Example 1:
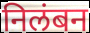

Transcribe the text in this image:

निलंबन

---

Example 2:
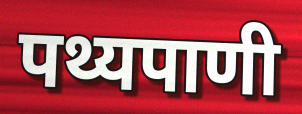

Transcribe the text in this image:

पथ्यपाणी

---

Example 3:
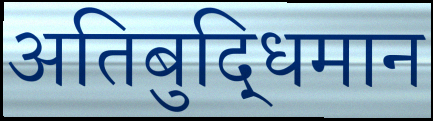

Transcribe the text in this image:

अतिबुद्धिमान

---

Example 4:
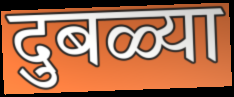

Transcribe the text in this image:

दुबळ्या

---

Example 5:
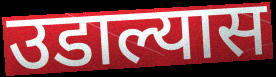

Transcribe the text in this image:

उडाल्यास